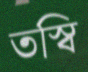
তস্বি